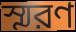
স্মরণ